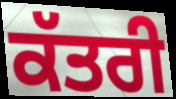
ਕੱਤਰੀ